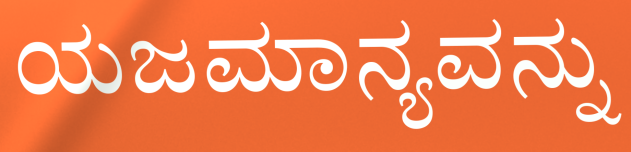
ಯಜಮಾನ್ಯವನ್ನು